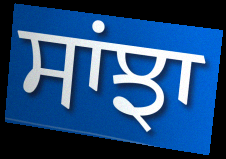
ਸਾਂਝਾ